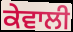
ਕੇਵਾਲੀ